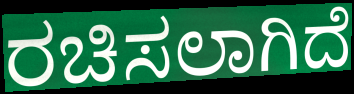
ರಚಿಸಲಾಗಿದೆ